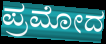
ಪ್ರಮೋದ